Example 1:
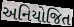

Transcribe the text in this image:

અનિયોજિત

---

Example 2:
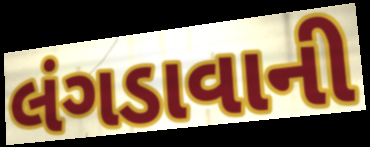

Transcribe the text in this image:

લંગડાવાની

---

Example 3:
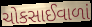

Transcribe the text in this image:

ચોકસાઈવાળાં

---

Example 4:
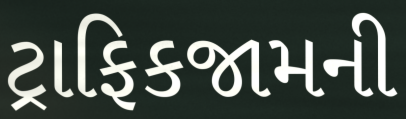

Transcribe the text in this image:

ટ્રાફિકજામની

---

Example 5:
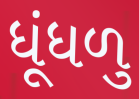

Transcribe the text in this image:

ધૂંધળુ